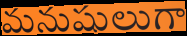
మనుషులుగా